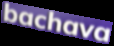
bachava